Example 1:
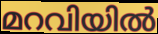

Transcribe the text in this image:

മറവിയിൽ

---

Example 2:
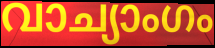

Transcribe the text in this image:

വാച്യാംഗം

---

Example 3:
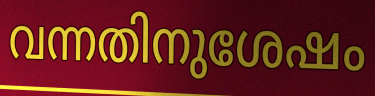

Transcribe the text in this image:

വന്നതിനുശേഷം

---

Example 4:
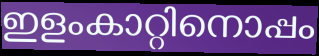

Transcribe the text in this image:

ഇളംകാറ്റിനൊപ്പം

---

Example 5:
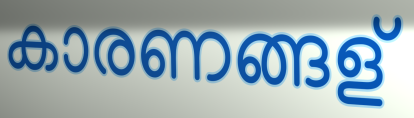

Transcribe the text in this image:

കാരണങ്ങള്